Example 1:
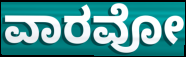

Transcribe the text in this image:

ವಾರವೋ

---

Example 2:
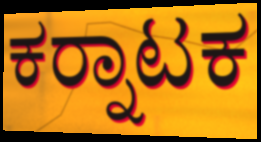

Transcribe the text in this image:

ಕರ‍್ನಾಟಕ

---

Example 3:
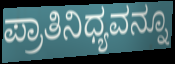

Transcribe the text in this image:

ಪ್ರಾತಿನಿಧ್ಯವನ್ನೂ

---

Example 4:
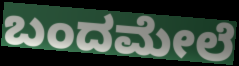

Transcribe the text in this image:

ಬಂದಮೇಲೆ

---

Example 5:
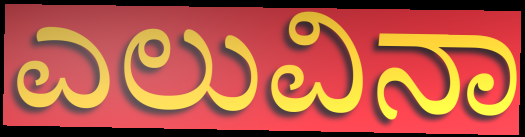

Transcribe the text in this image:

ಎಲುವಿನಾ